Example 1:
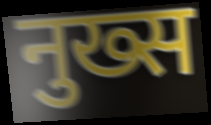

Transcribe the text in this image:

नुख्स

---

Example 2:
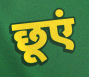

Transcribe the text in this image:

छूएं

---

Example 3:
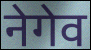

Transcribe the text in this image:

नेगेव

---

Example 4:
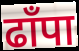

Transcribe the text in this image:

ढाँपा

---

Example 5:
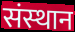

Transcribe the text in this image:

संस्‍थान